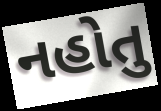
નહોતુ